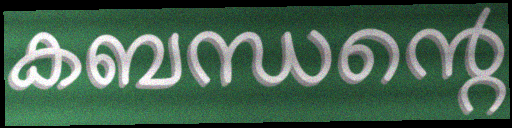
കബന്ധന്റെ